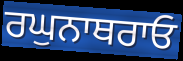
ਰਘੁਨਾਥਰਾਓ